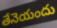
తేనెయందు